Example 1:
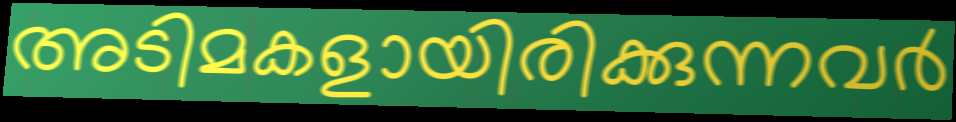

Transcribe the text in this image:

അടിമകളായിരിക്കുന്നവർ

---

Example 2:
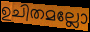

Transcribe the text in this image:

ഉചിതമല്ലോ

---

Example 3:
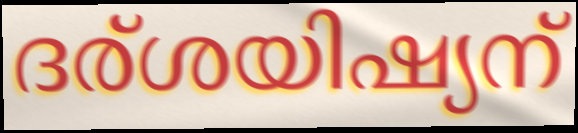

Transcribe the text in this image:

ദര്ശയിഷ്യന്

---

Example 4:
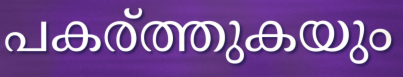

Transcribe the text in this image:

പകര്ത്തുകയും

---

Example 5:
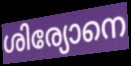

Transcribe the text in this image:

ശിര്യോനെ